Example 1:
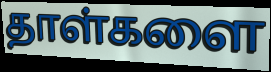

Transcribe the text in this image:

தாள்களை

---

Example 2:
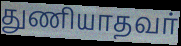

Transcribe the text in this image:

துணியாதவர்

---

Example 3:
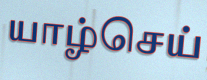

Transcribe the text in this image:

யாழ்செய்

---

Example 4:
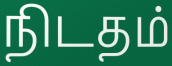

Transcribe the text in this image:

நிடதம்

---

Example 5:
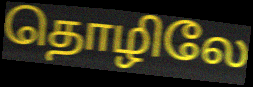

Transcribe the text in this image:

தொழிலே